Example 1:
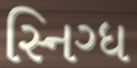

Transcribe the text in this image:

સ્નિગ્ધ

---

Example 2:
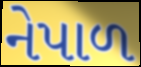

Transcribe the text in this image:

નેપાળ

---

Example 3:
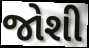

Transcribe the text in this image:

જોશી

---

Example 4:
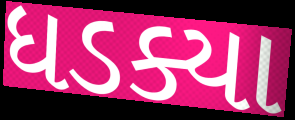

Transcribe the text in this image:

ધડક્યા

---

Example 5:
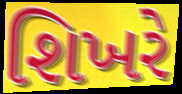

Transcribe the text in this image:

શિખરે